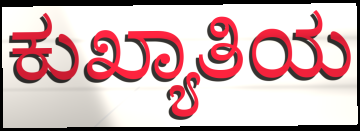
ಕುಖ್ಯಾತಿಯ